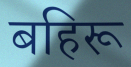
बहिरू